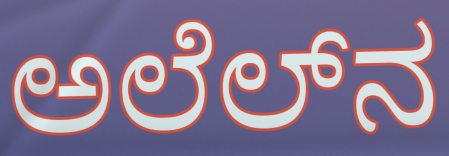
ಅಲೆಲ್‌ನ